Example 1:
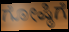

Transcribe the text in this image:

ಗೋಷ್ಠಿಗೆ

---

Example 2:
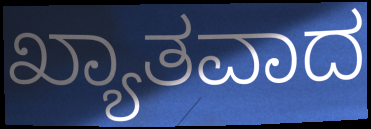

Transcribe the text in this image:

ಖ್ಯಾತವಾದ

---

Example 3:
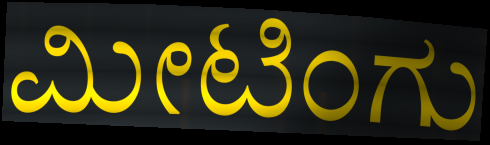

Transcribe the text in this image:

ಮೀಟಿಂಗು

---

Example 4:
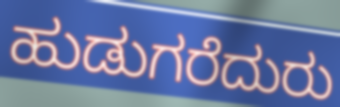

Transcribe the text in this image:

ಹುಡುಗರೆದುರು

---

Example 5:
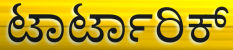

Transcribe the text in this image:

ಟಾರ್ಟಾರಿಕ್